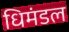
धिमंडल